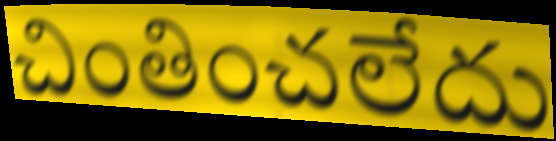
చింతించలేదు